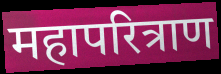
महापरित्राण